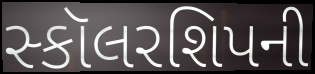
સ્કૉલરશિપની